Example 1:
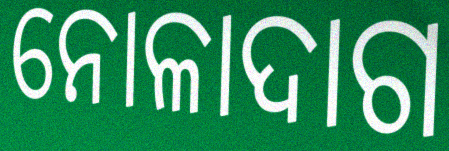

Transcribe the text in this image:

ନୋଳାଦାଗ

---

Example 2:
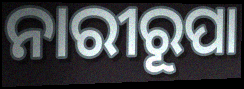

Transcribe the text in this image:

ନାରୀରୂପା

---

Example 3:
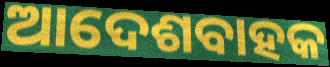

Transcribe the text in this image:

ଆଦେଶବାହକ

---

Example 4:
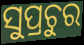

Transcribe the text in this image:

ସୁପ୍ରଚୁର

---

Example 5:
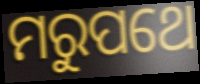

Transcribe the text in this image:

ମରୁପଥେ